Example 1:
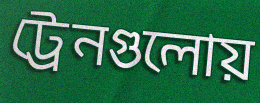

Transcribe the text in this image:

ট্রেনগুলোয়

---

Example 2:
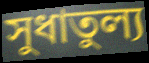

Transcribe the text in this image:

সুধাতুল্য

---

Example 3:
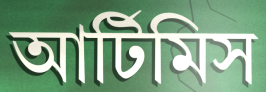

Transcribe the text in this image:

আর্টিমিস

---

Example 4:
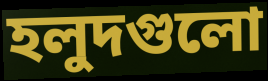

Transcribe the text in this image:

হলুদগুলো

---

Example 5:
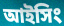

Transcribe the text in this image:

আইসিং